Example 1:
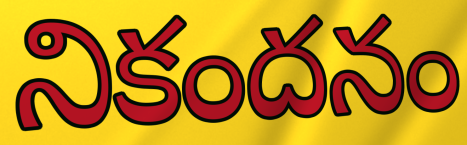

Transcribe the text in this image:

నికందనం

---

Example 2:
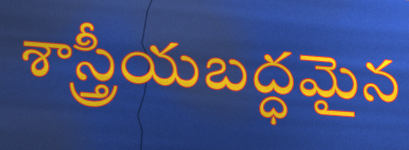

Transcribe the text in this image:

శాస్త్రీయబద్ధమైన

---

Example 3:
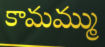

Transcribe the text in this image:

కామమ్ము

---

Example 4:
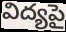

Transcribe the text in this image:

విద్యపై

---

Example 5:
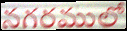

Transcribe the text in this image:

నగరములో